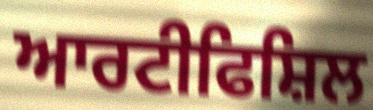
ਆਰਟੀਫਿਸ਼ਿਲ